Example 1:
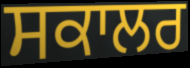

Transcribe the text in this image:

ਸਕਾਲਰ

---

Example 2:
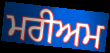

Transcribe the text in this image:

ਮਰੀਅਮ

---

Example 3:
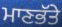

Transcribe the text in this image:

ਮਾਣਭੱਤੇ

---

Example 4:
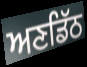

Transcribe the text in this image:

ਅਣਡਿੱਠ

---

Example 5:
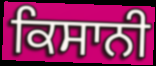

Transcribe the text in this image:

ਕਿਸਾਨੀ